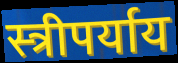
स्त्रीपर्याय